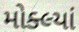
મોક્લ્યાં